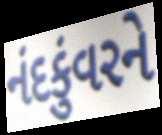
નંદકુંવરને